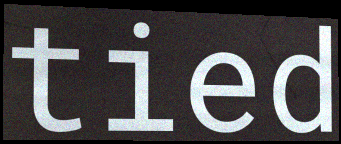
tied